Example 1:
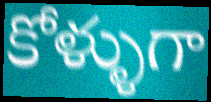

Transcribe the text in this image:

కోళ్ళుగా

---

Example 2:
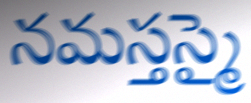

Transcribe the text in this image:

నమస్తస్మై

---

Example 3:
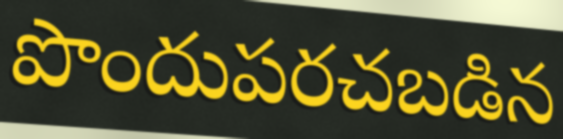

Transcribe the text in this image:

పొందుపరచబడిన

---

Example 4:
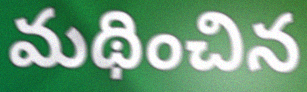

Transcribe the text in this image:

మథించిన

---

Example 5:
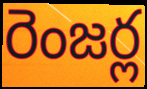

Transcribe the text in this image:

రెంజర్ల